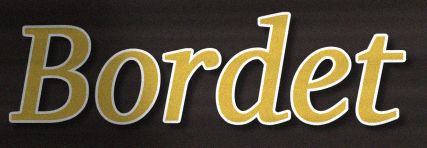
Bordet